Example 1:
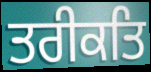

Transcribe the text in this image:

ਤਰੀਕਤਿ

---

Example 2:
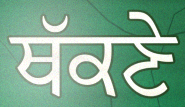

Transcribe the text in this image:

ਥੱਕਣੇ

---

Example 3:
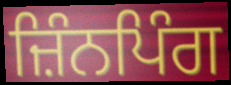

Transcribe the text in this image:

ਜ਼ਿੰਨਪਿੰਗ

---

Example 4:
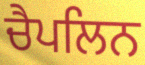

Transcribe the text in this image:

ਚੈਪਲਿਨ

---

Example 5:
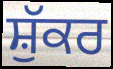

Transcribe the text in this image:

ਸ਼ੁੱਕਰ